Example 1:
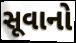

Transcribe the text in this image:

સૂવાનો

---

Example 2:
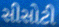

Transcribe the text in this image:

સીસોટી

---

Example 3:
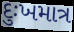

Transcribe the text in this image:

દુઃખમાત્ર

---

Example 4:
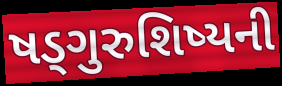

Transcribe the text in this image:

ષડ્ગુરુશિષ્યની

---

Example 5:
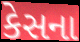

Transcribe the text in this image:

કેસના